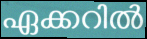
ഏക്കറിൽ